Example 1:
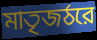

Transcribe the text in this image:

মাতৃজঠরে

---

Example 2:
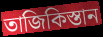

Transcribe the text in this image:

তাজিকিস্তান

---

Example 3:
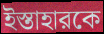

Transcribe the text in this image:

ইস্তাহারকে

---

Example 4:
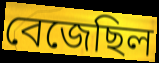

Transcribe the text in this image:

বেজেছিল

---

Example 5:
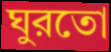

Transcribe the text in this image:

ঘুরতো